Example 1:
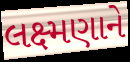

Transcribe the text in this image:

લક્ષ્મણાને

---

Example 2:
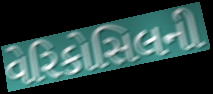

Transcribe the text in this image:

વેરિકોસિલની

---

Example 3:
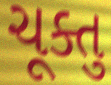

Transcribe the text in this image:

ચૂક્તુ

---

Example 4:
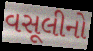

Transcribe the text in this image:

વસૂલીનો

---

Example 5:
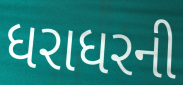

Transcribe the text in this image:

ધરાધરની